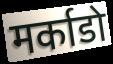
मर्काडो